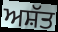
ਅਸ਼ੱਤ